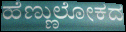
ಹೆಣ್ಣುಲೋಕದ